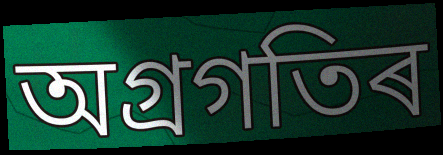
অগ্ৰগতিৰ